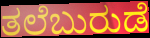
ತಲೆಬುರುಡೆ